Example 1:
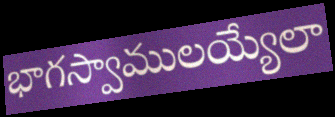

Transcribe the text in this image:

భాగస్వాములయ్యేలా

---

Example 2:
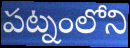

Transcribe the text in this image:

పట్నంలోని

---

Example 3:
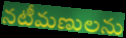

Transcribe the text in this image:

నటీమణులను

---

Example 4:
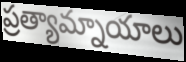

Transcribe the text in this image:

ప్రత్యామ్నాయాలు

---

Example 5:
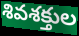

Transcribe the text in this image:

శివశక్తుల